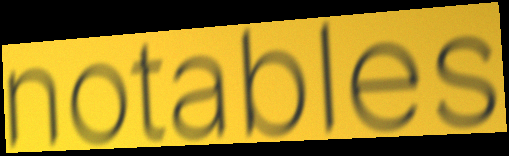
notables